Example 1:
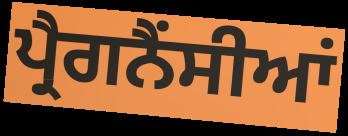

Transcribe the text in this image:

ਪ੍ਰੈਗਨੈਂਸੀਆਂ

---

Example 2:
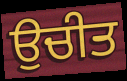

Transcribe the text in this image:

ਉਚੀਤ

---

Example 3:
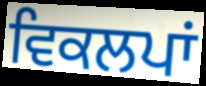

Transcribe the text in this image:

ਵਿਕਲਪਾਂ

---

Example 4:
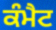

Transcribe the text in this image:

ਕੰਮੈਟ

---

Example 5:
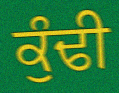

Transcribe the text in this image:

ਕੁੰਢੀ